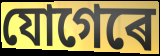
যোগেৰে